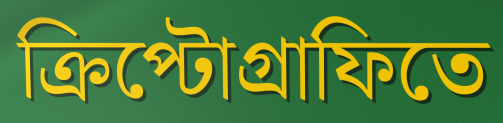
ক্রিপ্টোগ্রাফিতে